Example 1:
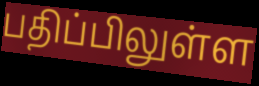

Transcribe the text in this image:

பதிப்பிலுள்ள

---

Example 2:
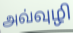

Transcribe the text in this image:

அவ்வுழி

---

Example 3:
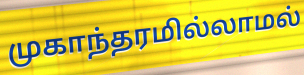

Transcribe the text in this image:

முகாந்தரமில்லாமல்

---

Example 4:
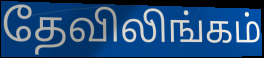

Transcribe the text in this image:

தேவிலிங்கம்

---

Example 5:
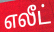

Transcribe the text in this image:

எலீட்